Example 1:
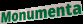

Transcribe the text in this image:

Monumenta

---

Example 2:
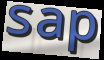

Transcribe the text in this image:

sap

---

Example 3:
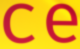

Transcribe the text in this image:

ce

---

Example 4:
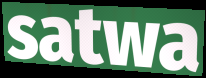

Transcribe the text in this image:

satwa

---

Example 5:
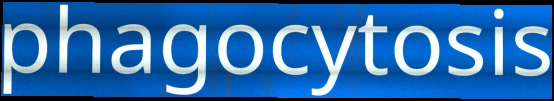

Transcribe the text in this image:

phagocytosis